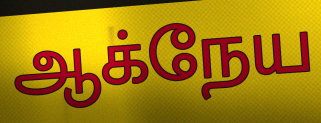
ஆக்நேய